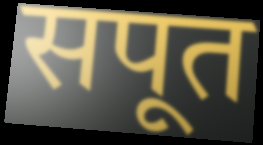
सपूत